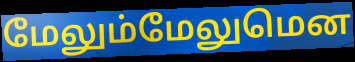
மேலும்மேலுமென